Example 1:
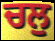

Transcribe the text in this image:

ਚਲੁ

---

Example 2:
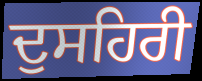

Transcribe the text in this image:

ਦੁਸਹਿਰੀ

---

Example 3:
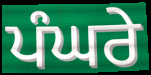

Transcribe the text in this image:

ਪੰਘਰੇ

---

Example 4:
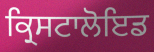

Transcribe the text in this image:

ਕ੍ਰਿਸਟਾਲੋਇਡ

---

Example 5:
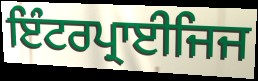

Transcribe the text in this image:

ਇੰਟਰਪ੍ਰਾਈਜਿਜ